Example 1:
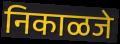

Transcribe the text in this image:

निकाळजे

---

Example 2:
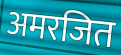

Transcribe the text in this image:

अमरजित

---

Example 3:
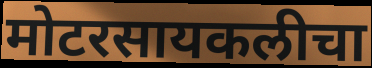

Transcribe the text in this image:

मोटरसायकलीचा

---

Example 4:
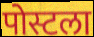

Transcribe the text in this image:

पोस्टला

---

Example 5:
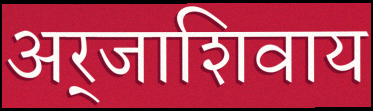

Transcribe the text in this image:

अर्जाशिवाय